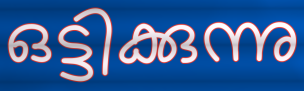
ഒട്ടിക്കുന്നു